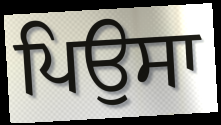
ਪਿਉਸਾ